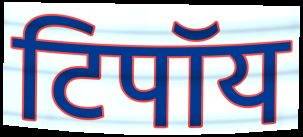
टिपॉय